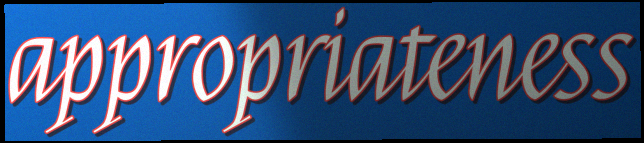
appropriateness